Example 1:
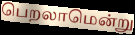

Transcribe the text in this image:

பெறலாமென்று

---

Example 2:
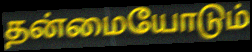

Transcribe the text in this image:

தன்மையோடும்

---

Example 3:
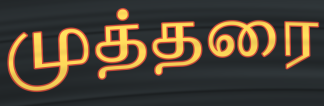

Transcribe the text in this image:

முத்தரை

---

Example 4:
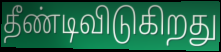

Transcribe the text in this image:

தீண்டிவிடுகிறது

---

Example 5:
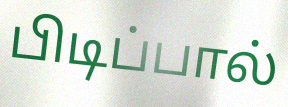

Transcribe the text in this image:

பிடிப்பால்